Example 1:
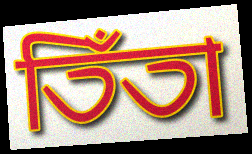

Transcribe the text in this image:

তিঁতা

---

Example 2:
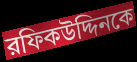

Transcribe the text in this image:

রফিকউদ্দিনকে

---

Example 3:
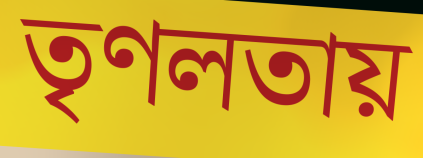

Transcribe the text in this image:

তৃণলতায়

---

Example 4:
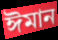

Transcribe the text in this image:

ঈমান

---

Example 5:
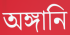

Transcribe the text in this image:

অঙ্গানি